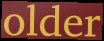
older